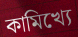
কামিখ্যে